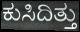
ಕುಸಿದಿತ್ತು